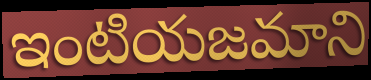
ఇంటియజమాని